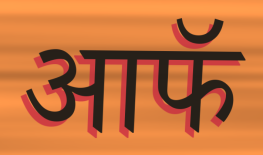
आफॅ